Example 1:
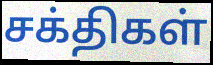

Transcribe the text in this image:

சக்திகள்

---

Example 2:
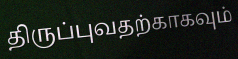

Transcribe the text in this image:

திருப்புவதற்காகவும்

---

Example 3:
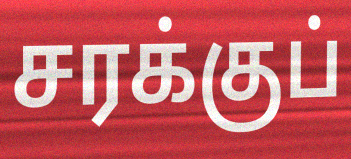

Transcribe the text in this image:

சரக்குப்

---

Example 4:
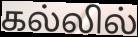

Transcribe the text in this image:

கல்லில்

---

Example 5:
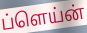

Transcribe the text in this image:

ப்ளெய்ன்